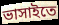
ভাসাইতে